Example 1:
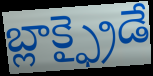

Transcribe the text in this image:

బ్లాక్ఫ్రైడే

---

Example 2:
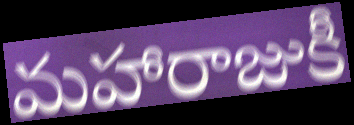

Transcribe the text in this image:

మహారాజుకీ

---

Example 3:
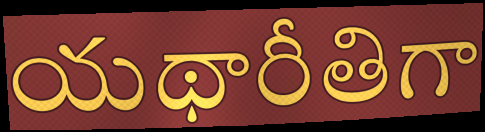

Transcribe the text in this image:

యథారీతిగా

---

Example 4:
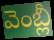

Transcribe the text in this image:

వెంబ్లీ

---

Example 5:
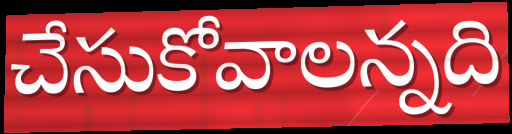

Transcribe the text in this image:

చేసుకోవాలన్నది